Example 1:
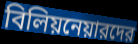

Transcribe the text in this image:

বিলিয়নেয়ারদের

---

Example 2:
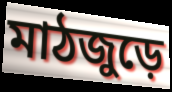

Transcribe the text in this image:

মাঠজুড়ে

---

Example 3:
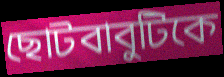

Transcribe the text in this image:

ছোটবাবুটিকে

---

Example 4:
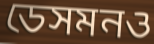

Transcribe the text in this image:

ডেসমনও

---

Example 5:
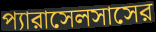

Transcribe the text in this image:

প্যারাসেলসাসের